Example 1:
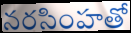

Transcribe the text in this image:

నరసింహతో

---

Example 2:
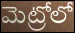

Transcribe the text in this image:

మెట్రోలో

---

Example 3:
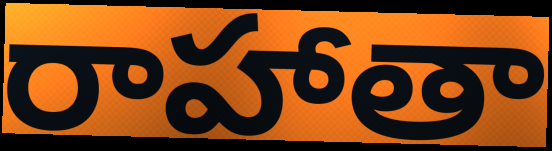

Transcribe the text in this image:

రాహాతా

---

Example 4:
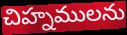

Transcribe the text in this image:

చిహ్నములను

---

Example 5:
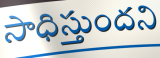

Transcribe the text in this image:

సాధిస్తుందని